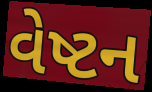
વેષ્ટન